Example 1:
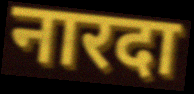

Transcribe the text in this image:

नारदा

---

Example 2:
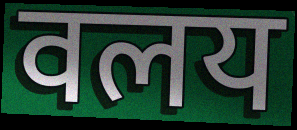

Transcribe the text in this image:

वलय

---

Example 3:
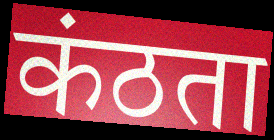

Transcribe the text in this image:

कंठता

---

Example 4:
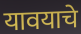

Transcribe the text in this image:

यावयाचे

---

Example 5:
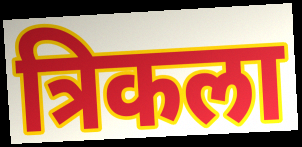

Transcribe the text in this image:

त्रिकला